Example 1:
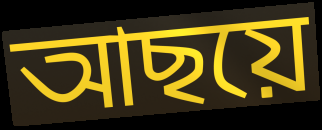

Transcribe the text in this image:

আছয়ে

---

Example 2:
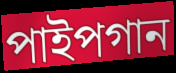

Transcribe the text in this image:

পাইপগান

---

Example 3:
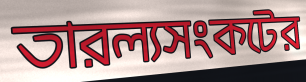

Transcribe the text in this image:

তারল্যসংকটের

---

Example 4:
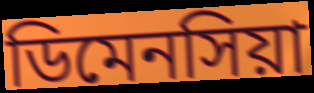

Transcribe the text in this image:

ডিমেনসিয়া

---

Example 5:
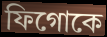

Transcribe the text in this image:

ফিগোকে